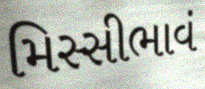
મિસ્સીભાવં